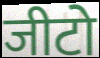
जीटो